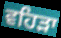
ਵਹਿੜਾ